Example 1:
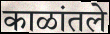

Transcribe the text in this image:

काळांतले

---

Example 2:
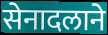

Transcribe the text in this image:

सेनादलाने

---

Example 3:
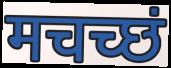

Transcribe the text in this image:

मचच्छं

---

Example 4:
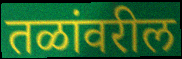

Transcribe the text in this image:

तळांवरील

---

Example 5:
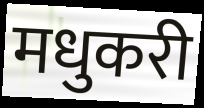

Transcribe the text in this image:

मधुकरी